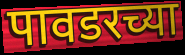
पावडरच्या